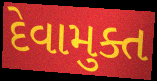
દેવામુક્ત